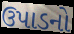
ઉપાડનો